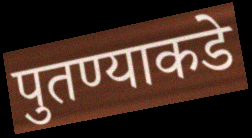
पुतण्याकडे